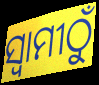
ସ୍ୱାମୀଠୁଁ